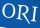
ORI